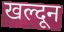
खल्दून